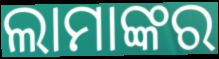
ଲାମାଙ୍କର